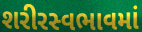
શરીરસ્વભાવમાં